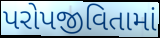
પરોપજીવિતામાં